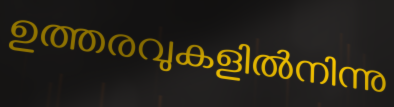
ഉത്തരവുകളിൽനിന്നു